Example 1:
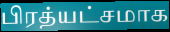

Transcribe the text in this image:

பிரத்யட்சமாக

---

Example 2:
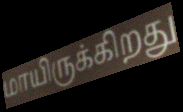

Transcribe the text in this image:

மாயிருக்கிறது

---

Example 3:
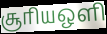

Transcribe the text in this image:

சூரியஒளி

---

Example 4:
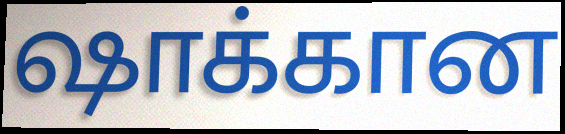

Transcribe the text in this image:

ஷாக்கான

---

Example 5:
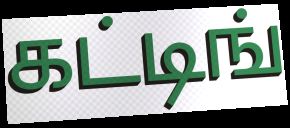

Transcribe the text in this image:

கட்டிங்